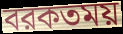
বরকতময়